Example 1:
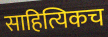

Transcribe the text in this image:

साहित्यिकच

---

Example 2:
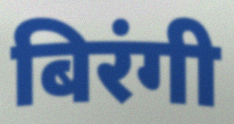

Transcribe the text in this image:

बिरंगी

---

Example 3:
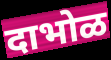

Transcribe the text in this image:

दाभोळ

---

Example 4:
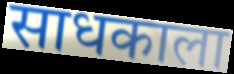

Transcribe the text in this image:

साधकाला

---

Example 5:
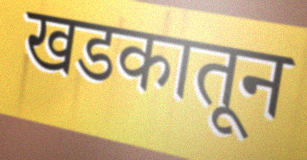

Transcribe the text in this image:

खडकातून